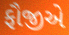
ફૌજીએ